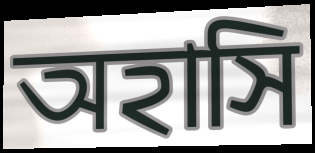
অহাসি